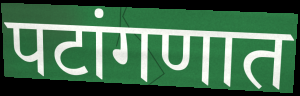
पटांगणात